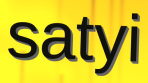
satyi